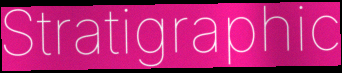
Stratigraphic